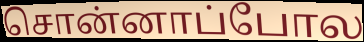
சொன்னாப்போல